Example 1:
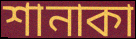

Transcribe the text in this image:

শানাকা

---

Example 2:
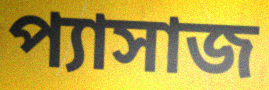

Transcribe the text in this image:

প্যাসাজ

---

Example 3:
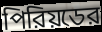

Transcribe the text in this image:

পিরিয়ডের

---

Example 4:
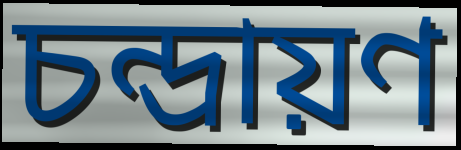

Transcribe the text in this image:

চন্দ্রায়ণ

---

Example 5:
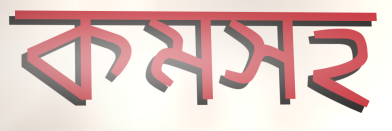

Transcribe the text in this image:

কমসহ